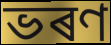
ভৰণ